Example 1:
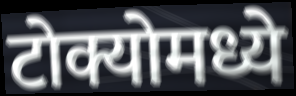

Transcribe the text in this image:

टोक्योमध्ये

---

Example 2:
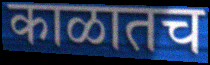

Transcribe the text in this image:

काळातच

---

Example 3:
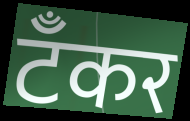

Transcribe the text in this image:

टॅँकर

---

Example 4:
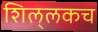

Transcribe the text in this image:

शिल्लकच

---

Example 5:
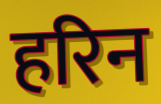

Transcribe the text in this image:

हरिन